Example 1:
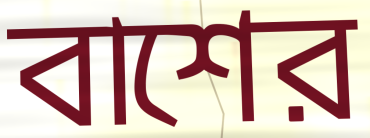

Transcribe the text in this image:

বাশের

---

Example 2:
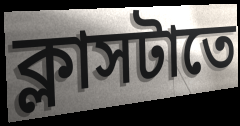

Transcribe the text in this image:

ক্লাসটাতে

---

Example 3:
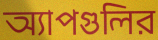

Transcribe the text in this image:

অ্যাপগুলির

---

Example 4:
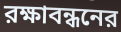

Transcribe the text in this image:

রক্ষাবন্ধনের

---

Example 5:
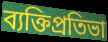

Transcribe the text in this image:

ব্যক্তিপ্রতিভা